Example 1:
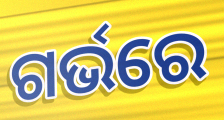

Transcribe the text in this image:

ଗର୍ଭରେ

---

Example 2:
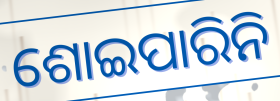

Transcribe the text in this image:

ଶୋଇପାରିନି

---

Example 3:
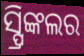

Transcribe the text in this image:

ସ୍ପ୍ରିଙ୍କଲର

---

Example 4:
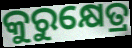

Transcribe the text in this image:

କୁରୁକ୍ଷେତ୍ର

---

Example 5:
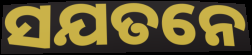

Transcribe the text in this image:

ସଯତନେ